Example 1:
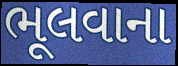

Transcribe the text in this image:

ભૂલવાના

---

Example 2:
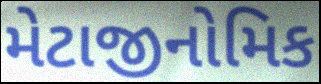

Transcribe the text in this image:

મેટાજીનોમિક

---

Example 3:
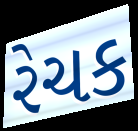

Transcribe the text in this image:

રેચક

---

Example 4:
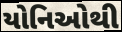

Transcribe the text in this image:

યોનિઓથી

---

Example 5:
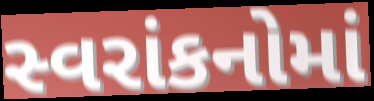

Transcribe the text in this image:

સ્વરાંકનોમાં